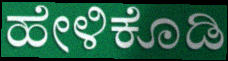
ಹೇಳಿಕೊಡಿ